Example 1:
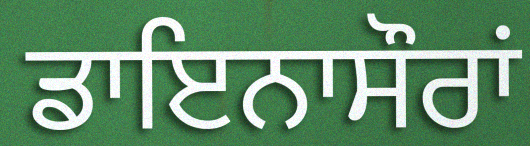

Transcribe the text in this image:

ਡਾਇਨਾਸੌਰਾਂ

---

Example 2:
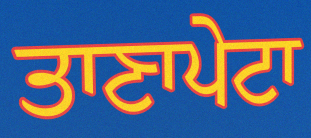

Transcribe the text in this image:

ਤਾਣਾਪੇਟਾ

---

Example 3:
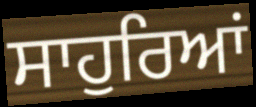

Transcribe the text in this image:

ਸਾਹੁਰਿਆਂ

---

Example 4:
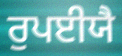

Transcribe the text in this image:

ਰੁਪਈਯੈ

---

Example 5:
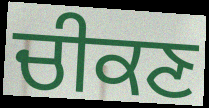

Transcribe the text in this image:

ਚੀਕਣ